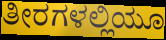
ತೀರಗಳಲ್ಲಿಯೂ